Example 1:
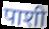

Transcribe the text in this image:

पाशी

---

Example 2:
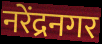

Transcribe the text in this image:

नरेंद्रनगर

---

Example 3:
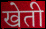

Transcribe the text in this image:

खेती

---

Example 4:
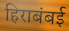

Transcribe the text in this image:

हिराबंबई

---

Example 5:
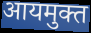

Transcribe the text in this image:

आयमुक्त